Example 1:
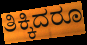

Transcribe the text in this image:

ತಿಕ್ಕಿದರೂ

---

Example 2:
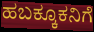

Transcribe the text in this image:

ಹಬಕ್ಕೂಕನಿಗೆ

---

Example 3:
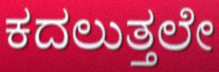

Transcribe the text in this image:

ಕದಲುತ್ತಲೇ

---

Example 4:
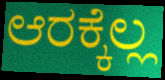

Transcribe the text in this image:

ಆರಕ್ಕೆಲ್ಲ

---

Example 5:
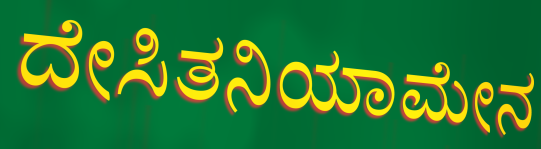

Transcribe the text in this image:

ದೇಸಿತನಿಯಾಮೇನ